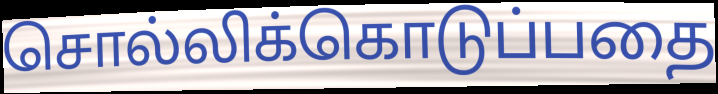
சொல்லிக்கொடுப்பதை